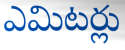
ఎమిటర్లు